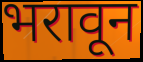
भरावून